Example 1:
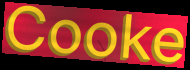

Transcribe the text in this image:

Cooke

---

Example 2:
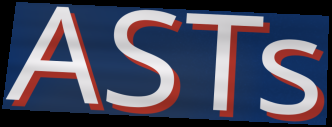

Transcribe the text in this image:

ASTs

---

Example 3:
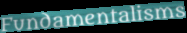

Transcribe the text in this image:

Fundamentalisms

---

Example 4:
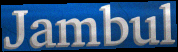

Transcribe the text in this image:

Jambul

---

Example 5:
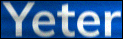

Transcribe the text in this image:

Yeter